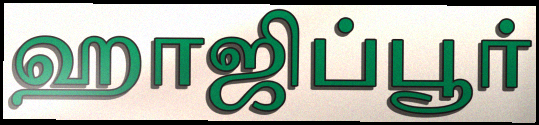
ஹாஜிப்பூர்